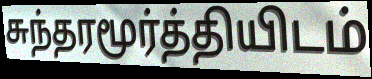
சுந்தரமூர்த்தியிடம்